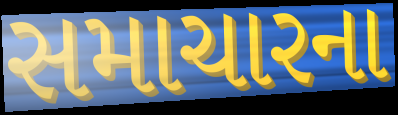
સમાચારના